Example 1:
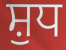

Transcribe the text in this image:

ਸ਼ੁਧ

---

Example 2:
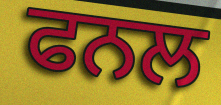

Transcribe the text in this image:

ਫਨਲ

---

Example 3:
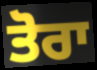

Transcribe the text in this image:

ਤੋਰਾ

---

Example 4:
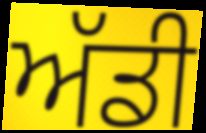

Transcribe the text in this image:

ਅੱਡੀ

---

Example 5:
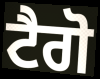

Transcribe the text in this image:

ਟੈਗੋ